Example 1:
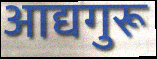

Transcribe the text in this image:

आद्यगुरू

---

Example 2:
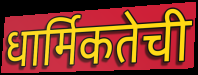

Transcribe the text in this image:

धार्मिकतेची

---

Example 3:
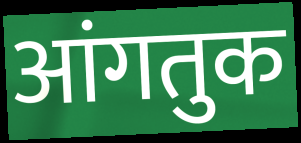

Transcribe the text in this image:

आंगतुक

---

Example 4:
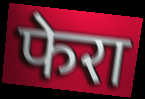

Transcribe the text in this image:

फेरा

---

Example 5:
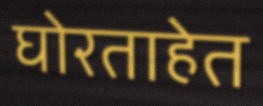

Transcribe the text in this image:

घोरताहेत